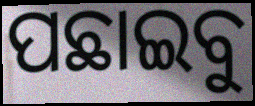
ପଛାଇବୁ